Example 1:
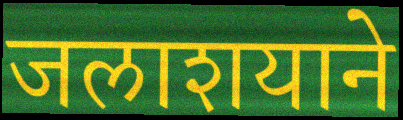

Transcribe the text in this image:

जलाशयाने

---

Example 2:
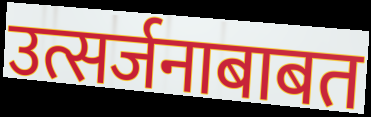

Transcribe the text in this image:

उत्सर्जनाबाबत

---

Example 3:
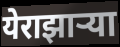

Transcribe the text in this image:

येराझाऱ्या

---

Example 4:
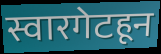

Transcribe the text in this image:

स्वारगेटहून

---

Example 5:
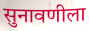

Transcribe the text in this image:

सुनावणीला